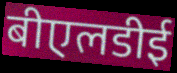
बीएलडीई